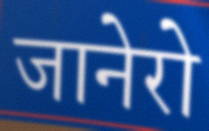
जानेरो